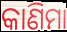
କାଣିମା